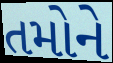
તમોને